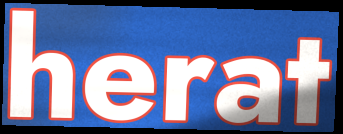
herat